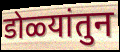
डोळ्यांतुन